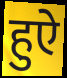
हुऐ